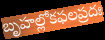
బృహల్లోకఫలప్రదః